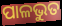
ପାଳଭୁତ